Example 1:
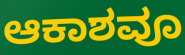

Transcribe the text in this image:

ಆಕಾಶವೂ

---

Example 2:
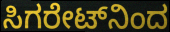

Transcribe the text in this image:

ಸಿಗರೇಟ್‌ನಿಂದ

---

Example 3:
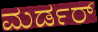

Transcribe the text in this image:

ಮರ್ಡರ್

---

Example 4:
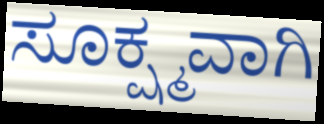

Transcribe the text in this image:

ಸೂಕ್ಷ್ಮವಾಗಿ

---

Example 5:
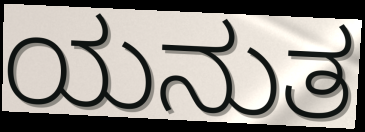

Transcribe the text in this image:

ಯನುತ